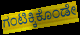
ಗಂಟಿಕ್ಕಿಕೊಂಡೇ